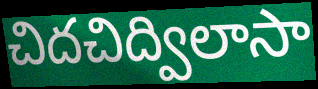
చిదచిద్విలాసా